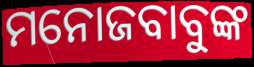
ମନୋଜବାବୁଙ୍କ